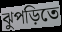
ঝুপড়িতে